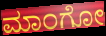
ಮಾಂಗೋ